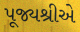
પૂજ્યશ્રીએ